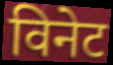
विनेट